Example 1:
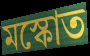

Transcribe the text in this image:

মস্কোত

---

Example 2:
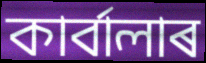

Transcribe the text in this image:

কাৰ্বালাৰ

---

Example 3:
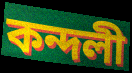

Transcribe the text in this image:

কন্দলী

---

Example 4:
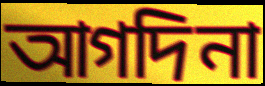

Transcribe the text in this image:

আগদিনা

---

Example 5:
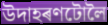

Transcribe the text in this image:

উদাহৰণটোলৈ